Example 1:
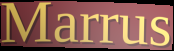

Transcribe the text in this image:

Marrus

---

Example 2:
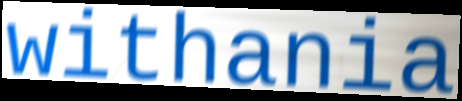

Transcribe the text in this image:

withania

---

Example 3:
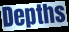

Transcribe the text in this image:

Depths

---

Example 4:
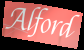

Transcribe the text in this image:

Alford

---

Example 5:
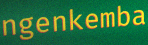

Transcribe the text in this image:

ngenkemba